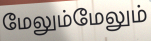
மேலும்மேலும்